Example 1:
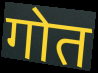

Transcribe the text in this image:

गोत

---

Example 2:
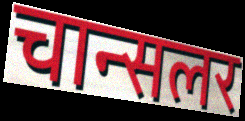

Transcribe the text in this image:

चान्सलर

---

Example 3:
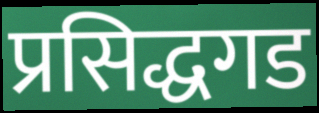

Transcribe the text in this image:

प्रसिद्धगड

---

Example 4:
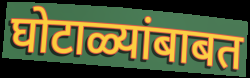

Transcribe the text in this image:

घोटाळ्यांबाबत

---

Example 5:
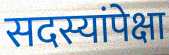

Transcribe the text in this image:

सदस्यांपेक्षा